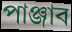
পাঞ্জাব